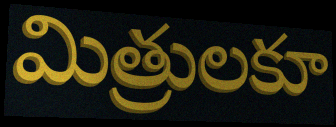
మిత్రులకూ